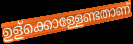
ഉള്ക്കൊള്ളേണ്ടതാണ്